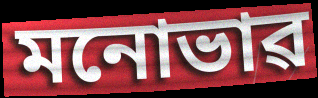
মনোভাৱ